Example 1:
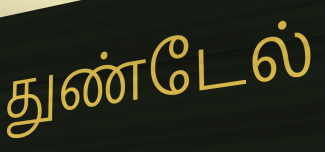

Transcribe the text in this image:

துண்டேல்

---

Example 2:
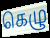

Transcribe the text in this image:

கெழு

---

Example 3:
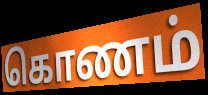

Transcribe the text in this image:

கொணம்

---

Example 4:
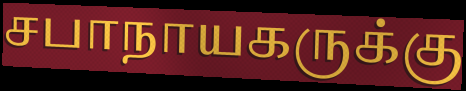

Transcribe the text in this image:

சபாநாயகருக்கு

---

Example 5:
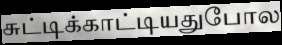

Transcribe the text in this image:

சுட்டிக்காட்டியதுபோல